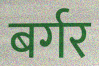
बर्गर